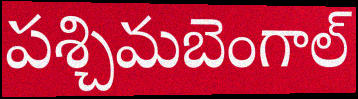
పశ్చిమబెంగాల్